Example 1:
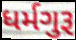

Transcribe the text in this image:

ધર્મગુરૂ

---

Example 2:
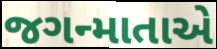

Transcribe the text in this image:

જગન્માતાએ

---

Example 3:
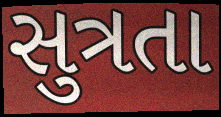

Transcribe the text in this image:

સુત્રતા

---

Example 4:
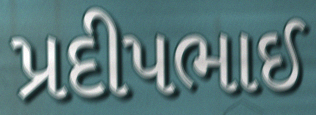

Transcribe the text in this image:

પ્રદીપભાઈ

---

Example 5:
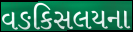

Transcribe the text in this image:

વઙકિસલયના